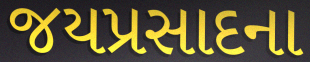
જયપ્રસાદના